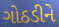
ગોઠડીને